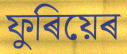
ফুৰিয়েৰ